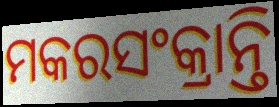
ମକରସଂକ୍ରାନ୍ତି